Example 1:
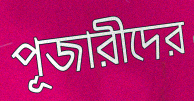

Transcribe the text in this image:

পূজারীদের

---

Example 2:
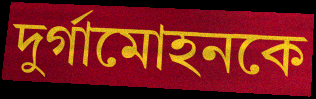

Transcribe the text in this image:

দুর্গামোহনকে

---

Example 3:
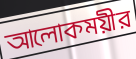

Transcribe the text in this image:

আলোকময়ীর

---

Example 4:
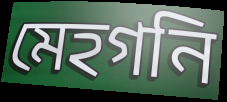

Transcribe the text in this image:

মেহগনি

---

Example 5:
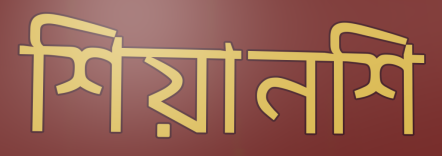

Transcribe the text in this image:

শিয়ানশি